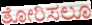
ತೋರಿಸಲೂ